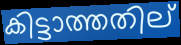
കിട്ടാത്തതില്